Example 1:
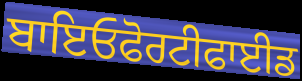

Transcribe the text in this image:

ਬਾਇਓਫੋਰਟੀਫਾਈਡ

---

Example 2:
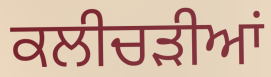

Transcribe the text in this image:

ਕਲੀਚੜੀਆਂ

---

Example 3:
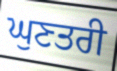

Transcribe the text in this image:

ਘੁਣਤਰੀ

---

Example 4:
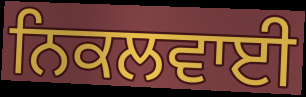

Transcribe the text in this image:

ਨਿਕਲਵਾਈ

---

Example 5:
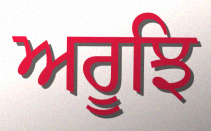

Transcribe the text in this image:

ਅਰੂਝਿ